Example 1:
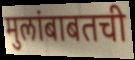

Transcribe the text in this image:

मुलांबाबतची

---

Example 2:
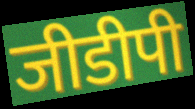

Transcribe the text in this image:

जीडीपी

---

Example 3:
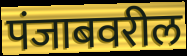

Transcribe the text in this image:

पंजाबवरील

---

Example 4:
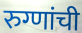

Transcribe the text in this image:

रुग्‍णांची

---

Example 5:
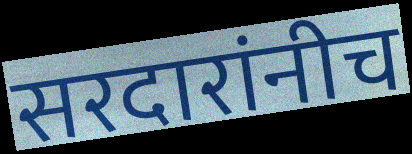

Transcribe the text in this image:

सरदारांनीच